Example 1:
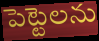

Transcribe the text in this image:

పెట్టెలను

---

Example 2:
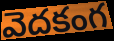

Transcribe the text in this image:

వెదకంగ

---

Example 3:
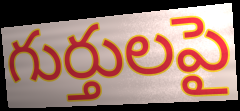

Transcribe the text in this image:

గుర్తులపై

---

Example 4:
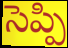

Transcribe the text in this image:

సెప్పి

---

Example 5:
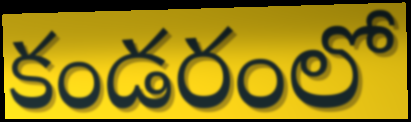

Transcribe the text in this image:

కండరంలో